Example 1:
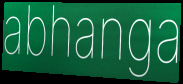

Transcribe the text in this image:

abhanga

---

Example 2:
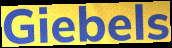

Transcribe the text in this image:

Giebels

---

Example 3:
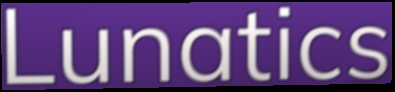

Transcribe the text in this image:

Lunatics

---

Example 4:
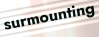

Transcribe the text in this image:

surmounting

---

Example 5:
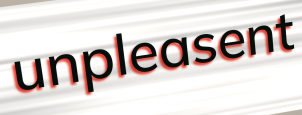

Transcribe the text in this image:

unpleasent